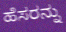
ಹೆಸರನ್ನು